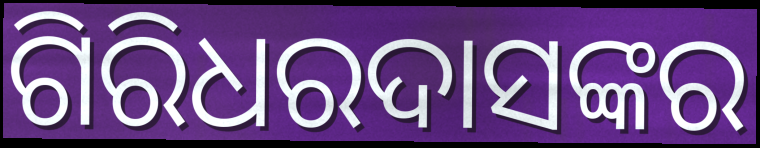
ଗିରିଧରଦାସଙ୍କର